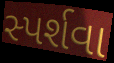
સ્પર્શવા